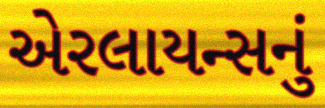
એરલાયન્સનું